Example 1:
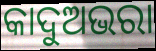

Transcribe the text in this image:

କାଦୁଅଭରା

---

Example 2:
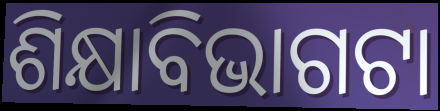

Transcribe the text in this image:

ଶିକ୍ଷାବିଭାଗଟା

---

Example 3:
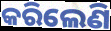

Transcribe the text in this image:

କରିଲେଣି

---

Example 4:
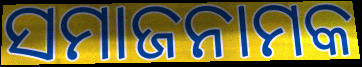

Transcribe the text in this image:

ସମାଜନାମକ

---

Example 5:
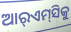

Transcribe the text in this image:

ଆର୍‌ଏମ୍‌ସିକୁ